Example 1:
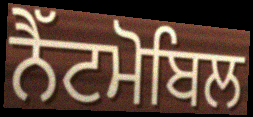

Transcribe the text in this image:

ਨੈੱਟਮੋਬਿਲ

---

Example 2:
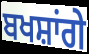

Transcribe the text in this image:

ਬਖਸ਼ਾਂਗੇ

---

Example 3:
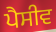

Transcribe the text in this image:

ਪੈਸੀਵ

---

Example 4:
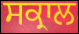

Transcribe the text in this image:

ਸਕ੍ਰਾਲ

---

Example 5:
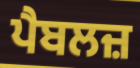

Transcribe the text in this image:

ਪੈਬਲਜ਼